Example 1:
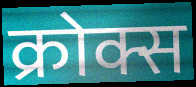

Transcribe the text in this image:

क्रोक्स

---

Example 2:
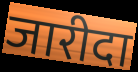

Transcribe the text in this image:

जारीदा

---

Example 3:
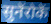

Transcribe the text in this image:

सुनेंरोकें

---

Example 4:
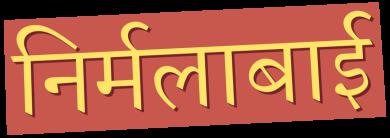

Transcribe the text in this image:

निर्मलाबाई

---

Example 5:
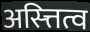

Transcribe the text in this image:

अस्त्तित्व